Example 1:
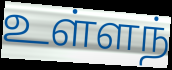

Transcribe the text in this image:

உள்ளந்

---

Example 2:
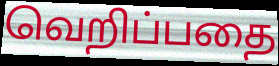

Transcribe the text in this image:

வெறிப்பதை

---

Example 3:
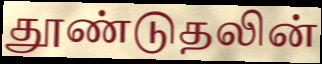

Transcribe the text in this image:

தூண்டுதலின்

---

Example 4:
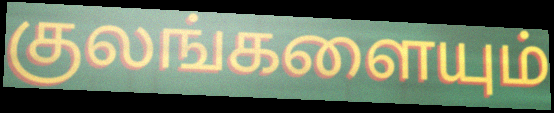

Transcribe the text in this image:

குலங்களையும்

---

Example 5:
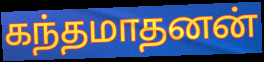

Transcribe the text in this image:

கந்தமாதனன்